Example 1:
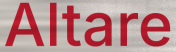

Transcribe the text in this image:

Altare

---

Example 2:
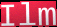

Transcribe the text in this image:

Ilm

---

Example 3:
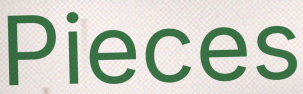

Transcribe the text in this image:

Pieces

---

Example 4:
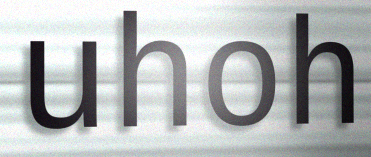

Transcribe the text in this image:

uhoh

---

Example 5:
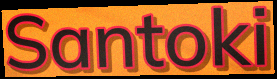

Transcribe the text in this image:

Santoki